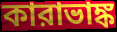
কারাভাঙ্ক